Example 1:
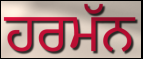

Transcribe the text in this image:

ਹਰਮੱਨ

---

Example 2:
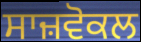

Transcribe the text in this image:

ਸਾਜ਼ਵੋਕਲ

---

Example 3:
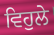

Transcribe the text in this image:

ਵਿਹੁਲੇ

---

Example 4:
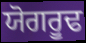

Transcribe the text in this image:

ਯੋਗਰੂਢ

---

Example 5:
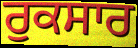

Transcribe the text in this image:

ਰੁਕਸਾਰ